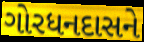
ગોરધનદાસને